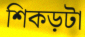
শিকড়টা